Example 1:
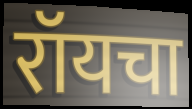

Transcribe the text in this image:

रॉयचा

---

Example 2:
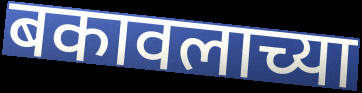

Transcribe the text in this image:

बकावलाच्या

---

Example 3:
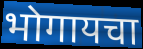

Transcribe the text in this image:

भोगायचा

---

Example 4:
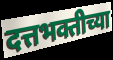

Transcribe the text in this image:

दत्तभक्तीच्या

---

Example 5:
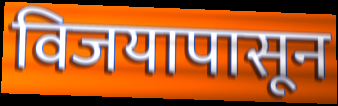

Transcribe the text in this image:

विजयापासून